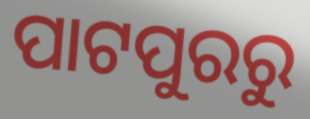
ପାଟପୁରରୁ